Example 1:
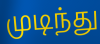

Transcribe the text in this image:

முடிந்து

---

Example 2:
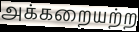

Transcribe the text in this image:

அக்கறையற்ற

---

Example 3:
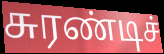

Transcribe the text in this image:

சுரண்டிச்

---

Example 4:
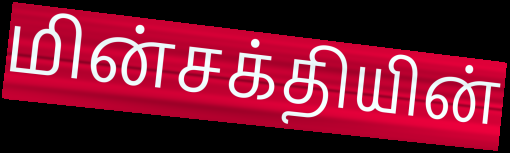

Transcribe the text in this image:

மின்சக்தியின்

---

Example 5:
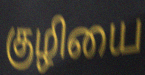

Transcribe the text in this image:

குழியை